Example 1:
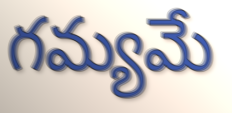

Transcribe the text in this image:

గమ్యమే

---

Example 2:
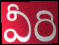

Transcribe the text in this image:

వీరి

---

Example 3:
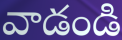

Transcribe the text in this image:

వాడండి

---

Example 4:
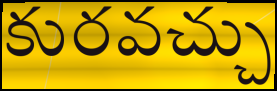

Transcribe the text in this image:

కురవచ్చు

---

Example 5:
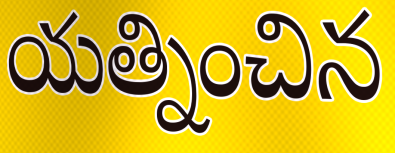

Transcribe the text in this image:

యత్నించిన